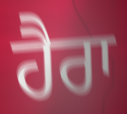
ਹੈਰਾ